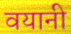
वयानी